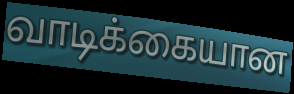
வாடிக்கையான